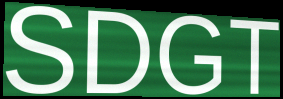
SDGT